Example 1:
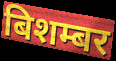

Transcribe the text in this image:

बिशम्बर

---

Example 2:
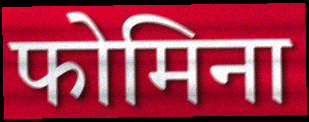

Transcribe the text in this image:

फोमिना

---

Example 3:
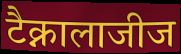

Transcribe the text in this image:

टैक्नालाजीज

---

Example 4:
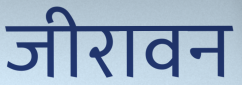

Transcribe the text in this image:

जीरावन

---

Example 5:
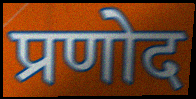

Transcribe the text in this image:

प्रणोद